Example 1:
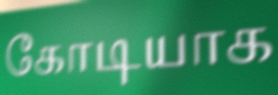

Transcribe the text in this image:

கோடியாக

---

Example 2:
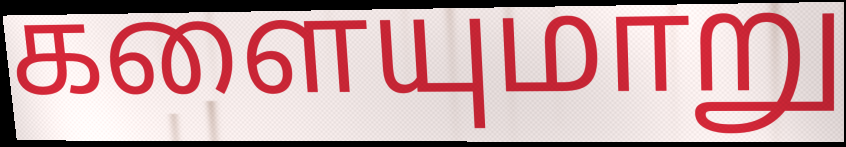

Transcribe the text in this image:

களையுமாறு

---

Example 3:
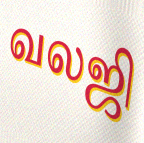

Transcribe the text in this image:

வலஜி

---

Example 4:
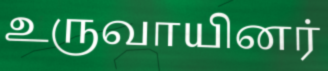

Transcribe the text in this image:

உருவாயினர்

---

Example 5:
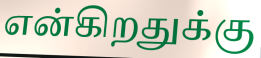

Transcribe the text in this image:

என்கிறதுக்கு